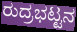
ರುದ್ರಭಟ್ಟನ